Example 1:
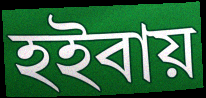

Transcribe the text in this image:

হইবায়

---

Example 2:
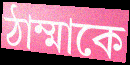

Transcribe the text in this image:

ঠাম্মাকে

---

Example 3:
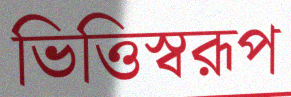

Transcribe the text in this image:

ভিত্তিস্বরূপ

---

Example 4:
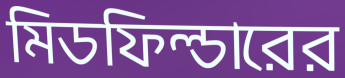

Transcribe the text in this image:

মিডফিল্ডারের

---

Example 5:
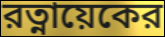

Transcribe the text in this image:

রত্নায়েকের